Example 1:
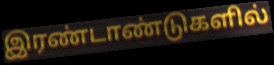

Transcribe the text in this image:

இரண்டாண்டுகளில்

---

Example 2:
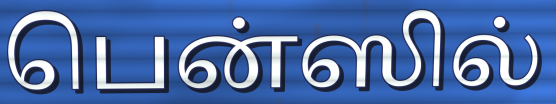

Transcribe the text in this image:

பென்ஸில்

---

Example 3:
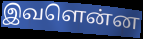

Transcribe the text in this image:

இவளென்ன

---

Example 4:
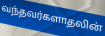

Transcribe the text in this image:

வந்தவர்களாதலின்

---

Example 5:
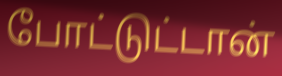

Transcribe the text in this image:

போட்டுட்டான்